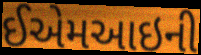
ઈએમઆઇની